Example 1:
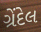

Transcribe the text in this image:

ગ્રેંદેલ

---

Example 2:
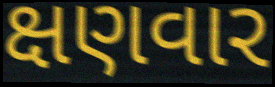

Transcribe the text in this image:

ક્ષણવાર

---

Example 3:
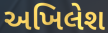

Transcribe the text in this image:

અખિલેશ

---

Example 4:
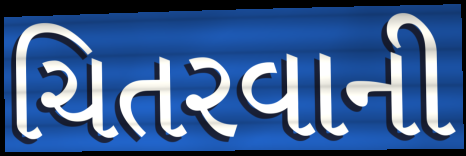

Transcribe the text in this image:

ચિતરવાની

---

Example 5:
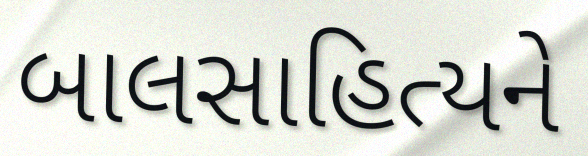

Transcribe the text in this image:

બાલસાહિત્યને